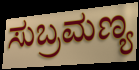
ಸುಬ್ರಮಣ್ಯ